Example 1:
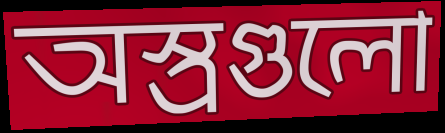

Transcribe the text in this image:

অস্ত্রগুলো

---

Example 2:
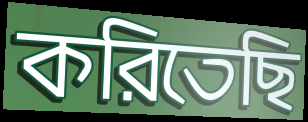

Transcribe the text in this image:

করিতেছি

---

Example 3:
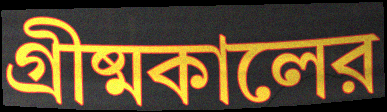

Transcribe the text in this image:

গ্রীষ্মকালের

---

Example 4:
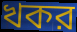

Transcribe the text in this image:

খকর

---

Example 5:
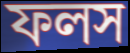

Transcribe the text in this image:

ফলস